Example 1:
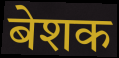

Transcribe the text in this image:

बेशक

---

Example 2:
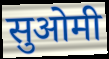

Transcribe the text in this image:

सुओमी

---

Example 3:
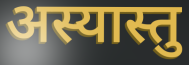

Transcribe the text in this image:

अस्यास्तु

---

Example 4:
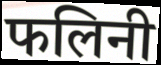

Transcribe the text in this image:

फलिनी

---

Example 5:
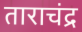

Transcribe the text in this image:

ताराचंद्र